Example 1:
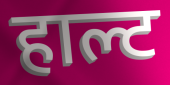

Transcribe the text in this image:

हाल्ट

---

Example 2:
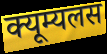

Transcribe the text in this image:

क्यूम्यलस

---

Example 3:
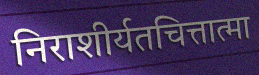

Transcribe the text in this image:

निराशीर्यतचित्तात्मा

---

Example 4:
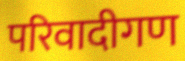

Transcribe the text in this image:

परिवादीगण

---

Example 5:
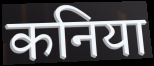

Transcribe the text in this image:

कनिया